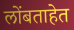
लोंबताहेत